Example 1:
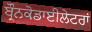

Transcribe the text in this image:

ਬ੍ਰੌਨਕੋਡਾਈਲੇਟਰਾਂ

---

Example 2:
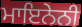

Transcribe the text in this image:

ਮਾਇਨੇਨੀ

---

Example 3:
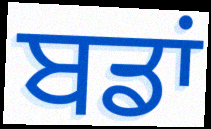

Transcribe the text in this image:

ਬਡਾਂ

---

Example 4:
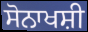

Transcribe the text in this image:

ਸੋਨਾਖਸ਼ੀ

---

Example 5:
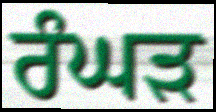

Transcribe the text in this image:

ਰੰਘੜ